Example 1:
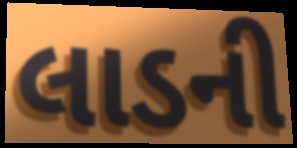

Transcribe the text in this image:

લાડની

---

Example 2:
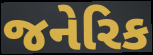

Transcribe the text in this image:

જનેરિક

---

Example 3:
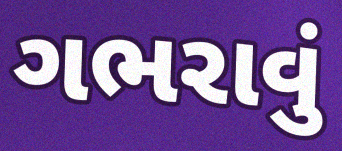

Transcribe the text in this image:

ગભરાવું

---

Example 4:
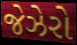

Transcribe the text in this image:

જેઝેરો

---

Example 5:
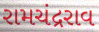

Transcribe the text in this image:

રામચંદ્રરાવ